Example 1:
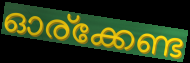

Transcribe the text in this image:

ഓര്ക്കേണ്ട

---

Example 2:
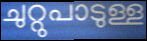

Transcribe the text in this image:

ചുറ്റുപാടുള്ള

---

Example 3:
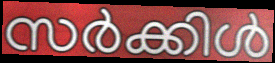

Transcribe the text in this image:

സർക്കിൾ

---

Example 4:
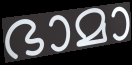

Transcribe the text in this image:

ഭാമാ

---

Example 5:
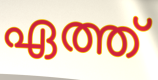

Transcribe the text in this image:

ഏത്ത്